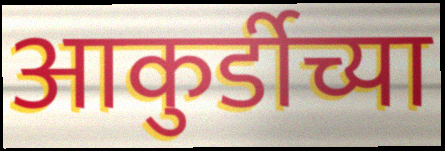
आकुर्डीच्या